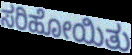
ಸರಿಹೋಯಿತು